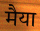
मैया